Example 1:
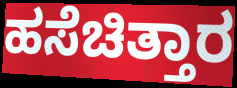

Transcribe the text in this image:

ಹಸೆಚಿತ್ತಾರ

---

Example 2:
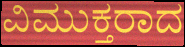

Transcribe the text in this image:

ವಿಮುಕ್ತರಾದ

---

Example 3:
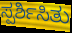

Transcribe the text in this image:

ಸ್ಪರ್ಶಿಸಿತು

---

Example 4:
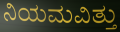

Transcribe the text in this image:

ನಿಯಮವಿತ್ತು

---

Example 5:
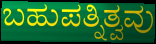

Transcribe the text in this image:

ಬಹುಪತ್ನಿತ್ವವು